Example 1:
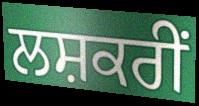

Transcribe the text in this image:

ਲਸ਼ਕਰੀਂ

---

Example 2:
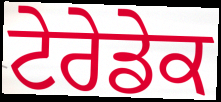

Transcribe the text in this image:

ਟੇਰੇਡੇਕ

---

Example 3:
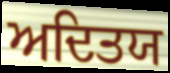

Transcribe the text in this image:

ਅਦਿਤਯ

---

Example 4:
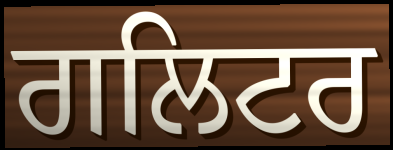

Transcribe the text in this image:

ਗਲਿਟਰ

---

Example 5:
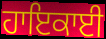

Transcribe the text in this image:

ਹਾਇਕਾਈ